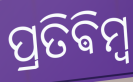
ପ୍ରତିଵିମ୍ବ